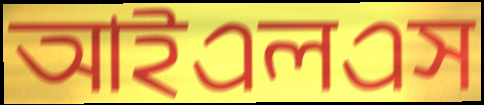
আইএলএস